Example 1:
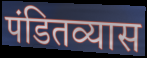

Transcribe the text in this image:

पंडितव्यास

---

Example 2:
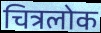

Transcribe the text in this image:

चित्रलोक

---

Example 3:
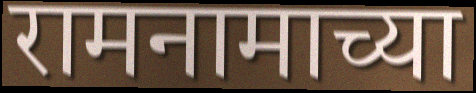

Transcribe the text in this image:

रामनामाच्या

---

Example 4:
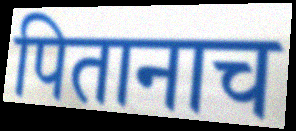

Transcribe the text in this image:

पितानाच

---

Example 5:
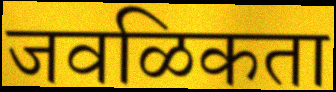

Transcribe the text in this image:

जवळिकता